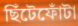
ছিঁটেফোঁটা